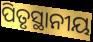
ପିତୃସ୍ଥାନୀୟ